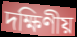
দক্ষিণীয়